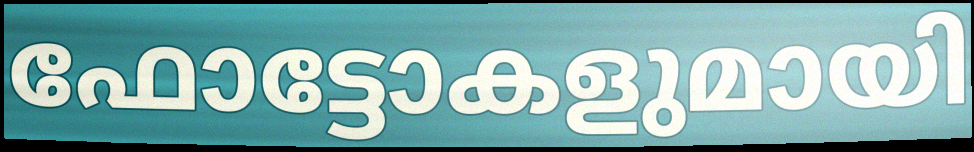
ഫോട്ടോകളുമായി